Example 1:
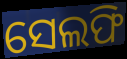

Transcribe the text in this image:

ସେଲଫି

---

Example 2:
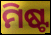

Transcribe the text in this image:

ମିଷ୍ଟ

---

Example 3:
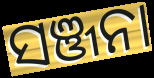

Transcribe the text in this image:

ସଞ୍ଜନା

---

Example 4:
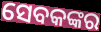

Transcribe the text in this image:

ସେବକଙ୍କର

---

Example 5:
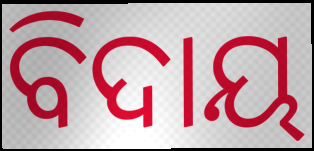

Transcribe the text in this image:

ବିଦାୟ